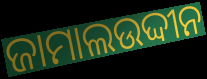
ଜାମାଲଉଦ୍ଦୀନ